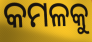
କମଳକୁ